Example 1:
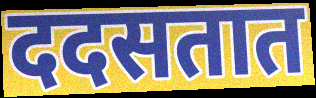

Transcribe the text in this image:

ददसतात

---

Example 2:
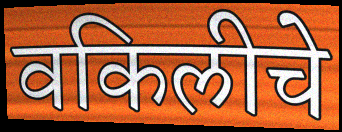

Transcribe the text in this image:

वकिलीचे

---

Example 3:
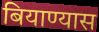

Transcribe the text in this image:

बियाण्यास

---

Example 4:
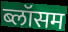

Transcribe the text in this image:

ब्लॉसम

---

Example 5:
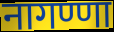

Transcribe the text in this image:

नागण्णा